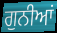
ਗੁਨੀਆਂ